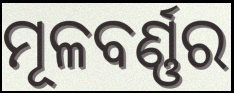
ମୂଳବର୍ଣ୍ଣର